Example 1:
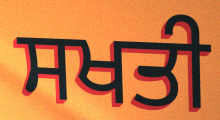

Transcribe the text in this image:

ਸਖਤੀ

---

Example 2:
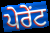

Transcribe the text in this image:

ਪੇਰੇਂਟ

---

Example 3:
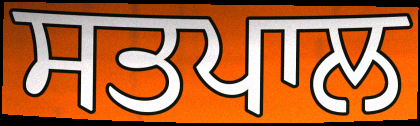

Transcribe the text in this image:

ਸਤਪਾਲ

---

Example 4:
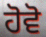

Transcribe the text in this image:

ਹੋਵੋ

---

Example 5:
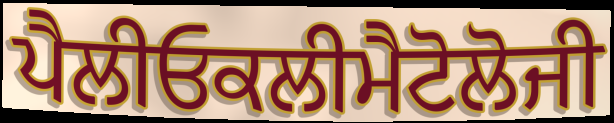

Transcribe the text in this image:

ਪੈਲੀਓਕਲੀਮੈਟੋਲੋਜੀ